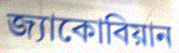
জ্যাকোবিয়ান